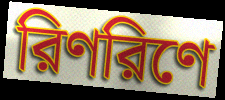
রিণরিণে